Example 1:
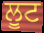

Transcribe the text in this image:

ਲੂਟ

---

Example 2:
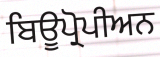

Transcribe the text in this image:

ਬਿਊਪ੍ਰੋਪੀਅਨ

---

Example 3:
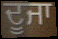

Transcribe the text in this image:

ਦੂਜਾ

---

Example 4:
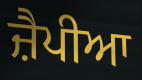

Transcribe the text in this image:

ਜ਼ੈਪੀਆ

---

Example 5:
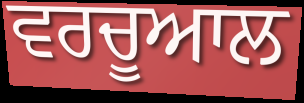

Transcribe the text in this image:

ਵਰਚੂਆਲ